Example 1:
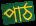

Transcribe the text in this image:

পাঠ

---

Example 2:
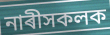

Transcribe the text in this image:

নাৰীসকলক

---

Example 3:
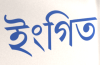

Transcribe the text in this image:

ইংগিত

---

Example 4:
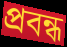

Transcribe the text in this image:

প্ৰবন্ধ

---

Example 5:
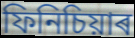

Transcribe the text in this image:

ফিনিচিয়াৰ